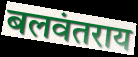
बलवंतराय